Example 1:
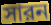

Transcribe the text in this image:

সারন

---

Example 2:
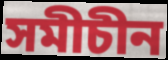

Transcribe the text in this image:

সমীচীন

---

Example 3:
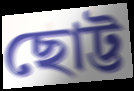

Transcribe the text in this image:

ছোট্ট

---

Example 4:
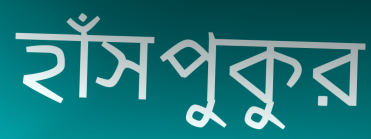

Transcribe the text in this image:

হাঁসপুকুর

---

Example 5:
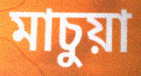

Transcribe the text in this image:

মাচুয়া